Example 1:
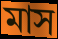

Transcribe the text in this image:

মাস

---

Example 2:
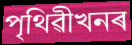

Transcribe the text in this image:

পৃথিৱীখনৰ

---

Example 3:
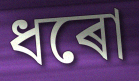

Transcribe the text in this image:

ধৰো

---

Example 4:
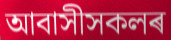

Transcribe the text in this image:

আবাসীসকলৰ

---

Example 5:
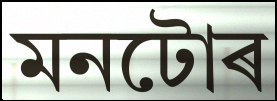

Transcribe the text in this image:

মনটোৰ